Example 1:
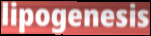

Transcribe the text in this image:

lipogenesis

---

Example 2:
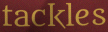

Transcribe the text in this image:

tackles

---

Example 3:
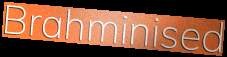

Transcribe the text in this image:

Brahminised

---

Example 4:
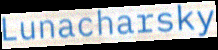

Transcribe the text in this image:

Lunacharsky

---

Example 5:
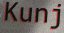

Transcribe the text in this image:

Kunj